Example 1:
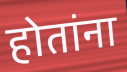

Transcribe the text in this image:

होतांना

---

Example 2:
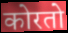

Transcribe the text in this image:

कोरतो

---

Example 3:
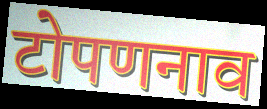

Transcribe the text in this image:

टोपणनाव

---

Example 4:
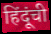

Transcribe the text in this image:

हिंदूंची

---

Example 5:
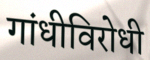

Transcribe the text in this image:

गांधीविरोधी